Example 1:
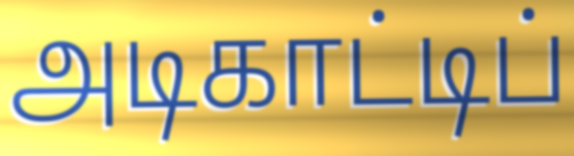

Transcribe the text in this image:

அடிகாட்டிப்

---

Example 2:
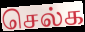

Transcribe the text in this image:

செல்க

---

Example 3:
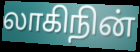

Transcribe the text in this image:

லாகிநின்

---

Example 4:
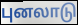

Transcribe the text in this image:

புனலாடு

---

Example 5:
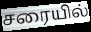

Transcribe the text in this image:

சரையில்